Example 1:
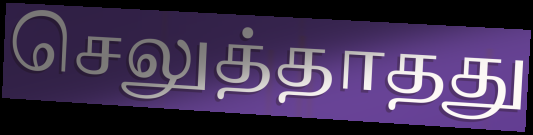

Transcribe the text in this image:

செலுத்தாதது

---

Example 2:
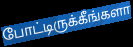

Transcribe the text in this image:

போட்டிருக்கீங்களா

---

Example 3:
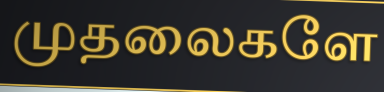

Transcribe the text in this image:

முதலைகளே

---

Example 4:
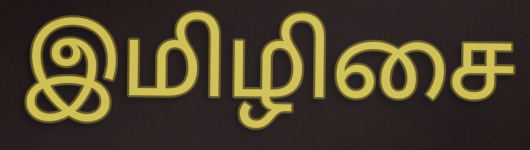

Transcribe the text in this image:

இமிழிசை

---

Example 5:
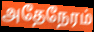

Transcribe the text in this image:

அதேநேரம்